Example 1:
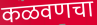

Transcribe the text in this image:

कळवणचा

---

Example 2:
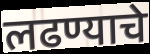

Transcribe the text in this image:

लढण्याचे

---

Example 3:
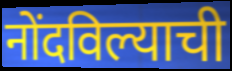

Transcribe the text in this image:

नोंदविल्याची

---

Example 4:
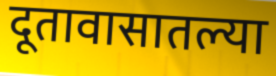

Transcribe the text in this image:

दूतावासातल्या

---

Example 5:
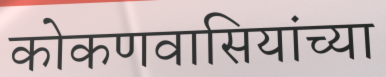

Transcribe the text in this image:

कोकणवासियांच्या